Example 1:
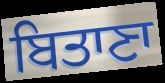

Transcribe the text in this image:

ਬਿਤਾਣਾ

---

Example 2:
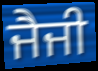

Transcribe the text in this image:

ਜੈਜੀ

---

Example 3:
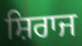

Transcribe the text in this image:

ਸ਼ਿਰਾਜ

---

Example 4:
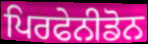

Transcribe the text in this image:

ਪਿਰਫੇਨੀਡੋਨ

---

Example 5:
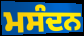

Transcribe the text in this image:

ਮਸੰਦਨ